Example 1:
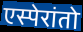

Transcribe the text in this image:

एस्पेरांतो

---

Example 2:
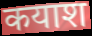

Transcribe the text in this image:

कयाश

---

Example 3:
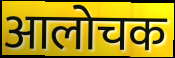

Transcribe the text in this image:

आलोचक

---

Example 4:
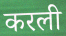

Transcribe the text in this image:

करली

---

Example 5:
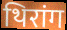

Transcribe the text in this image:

थिरांग